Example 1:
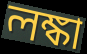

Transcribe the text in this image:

লঙ্কা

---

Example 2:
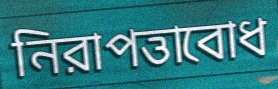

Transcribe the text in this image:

নিরাপত্তাবোধ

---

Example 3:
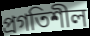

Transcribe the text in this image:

প্রগতিশীল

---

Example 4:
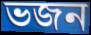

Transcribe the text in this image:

ভজন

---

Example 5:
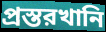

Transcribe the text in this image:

প্রস্তরখানি